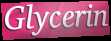
Glycerin